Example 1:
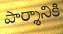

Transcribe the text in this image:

పార్శానికి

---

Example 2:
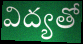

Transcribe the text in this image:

విద్యతో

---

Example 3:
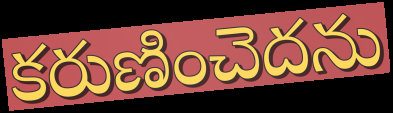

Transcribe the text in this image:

కరుణించెదను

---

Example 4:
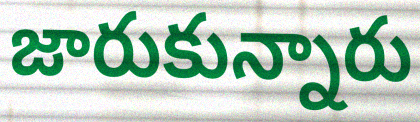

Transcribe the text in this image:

జారుకున్నారు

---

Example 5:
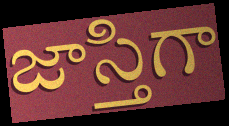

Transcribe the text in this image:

జాస్తిగా